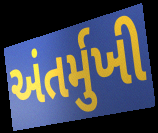
અંતર્મુખી